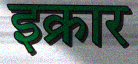
इक्रार